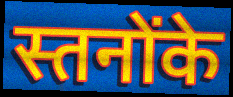
स्तनोंके